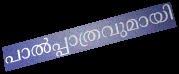
പാൽപ്പാത്രവുമായി